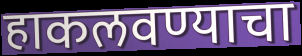
हाकलवण्याचा